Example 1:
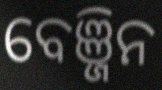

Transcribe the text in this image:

ବେଞ୍ଜିନ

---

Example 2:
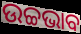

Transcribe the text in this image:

ଉଚ୍ଚଭାବ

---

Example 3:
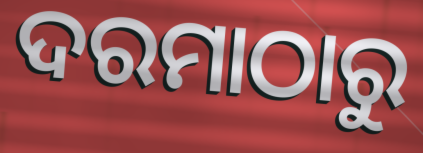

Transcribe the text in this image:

ଦରମାଠାରୁ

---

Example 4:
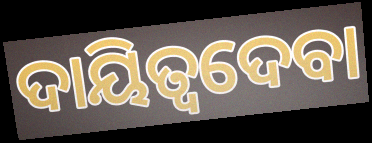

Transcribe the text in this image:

ଦାୟିତ୍ୱଦେବା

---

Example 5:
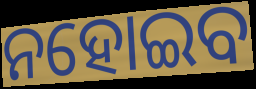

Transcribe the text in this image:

ନହୋଇବ